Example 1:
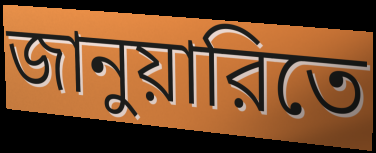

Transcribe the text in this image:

জানুয়ারিতে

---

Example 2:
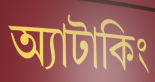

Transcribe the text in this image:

অ্যাটাকিং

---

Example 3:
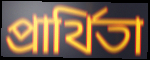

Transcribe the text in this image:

প্রার্থিতা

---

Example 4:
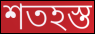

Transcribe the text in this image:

শতহস্ত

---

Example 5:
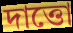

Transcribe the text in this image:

দাত্তো